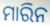
ମାରିନ